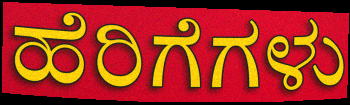
ಹೆರಿಗೆಗಳು